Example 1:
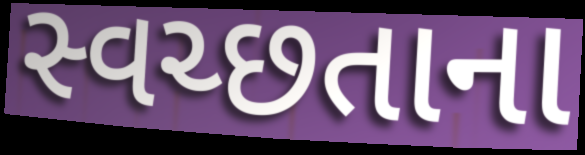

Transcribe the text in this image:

સ્વચ્છતાના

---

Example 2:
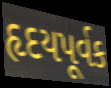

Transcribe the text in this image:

હૃદયપૂર્વક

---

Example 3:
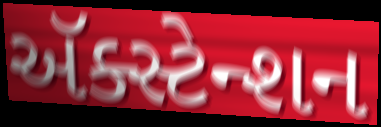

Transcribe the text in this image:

ઍક્સ્ટેન્શન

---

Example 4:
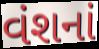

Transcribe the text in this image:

વંશનાં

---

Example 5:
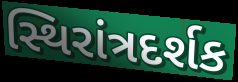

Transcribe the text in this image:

સ્થિરાંત્રદર્શક